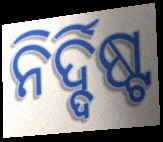
ନିର୍ଦ୍ଦିଷ୍ଟ